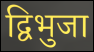
द्विभुजा